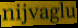
nijvaglu